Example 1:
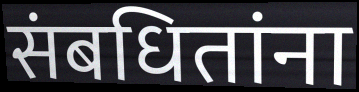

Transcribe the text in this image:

संबधितांना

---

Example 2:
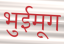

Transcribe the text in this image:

भुईमूग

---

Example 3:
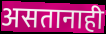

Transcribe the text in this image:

असतानाही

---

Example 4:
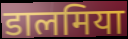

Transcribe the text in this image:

डालमिया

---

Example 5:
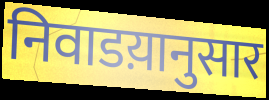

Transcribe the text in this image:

निवाडय़ानुसार